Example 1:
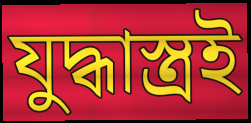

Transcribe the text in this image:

যুদ্ধাস্ত্রই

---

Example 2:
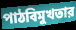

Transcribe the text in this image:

পাঠবিমুখতার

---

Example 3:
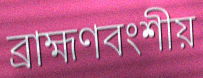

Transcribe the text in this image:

ব্রাহ্মণবংশীয়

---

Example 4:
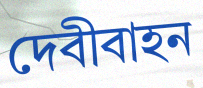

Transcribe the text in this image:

দেবীবাহন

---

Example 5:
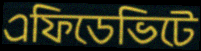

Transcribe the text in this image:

এফিডেভিটে